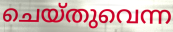
ചെയ്തുവെന്ന